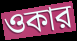
ওকার